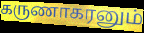
கருணாகரனும்